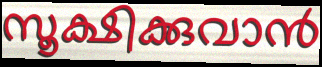
സൂക്ഷിക്കുവാൻ